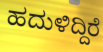
ಹದುಳಿದ್ದಿರೆ